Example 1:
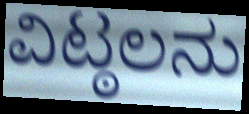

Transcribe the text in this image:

ವಿಟ್ಠಲನು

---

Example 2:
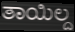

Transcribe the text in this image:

ತಾಯಿಲ್ದ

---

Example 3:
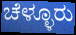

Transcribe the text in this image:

ಚೆಳ್ಳೂರು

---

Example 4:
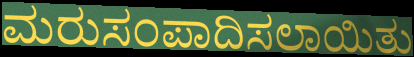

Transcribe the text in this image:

ಮರುಸಂಪಾದಿಸಲಾಯಿತು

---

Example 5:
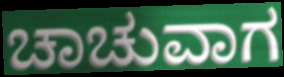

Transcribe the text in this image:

ಚಾಚುವಾಗ